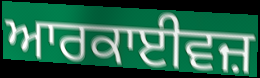
ਆਰਕਾਈਵਜ਼